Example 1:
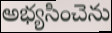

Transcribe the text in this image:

అభ్యసించెను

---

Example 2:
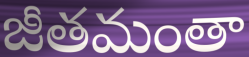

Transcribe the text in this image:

జీతమంతా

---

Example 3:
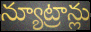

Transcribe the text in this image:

న్యూట్రాన్లు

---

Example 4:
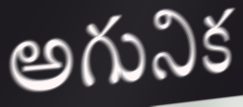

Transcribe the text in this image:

అగునిక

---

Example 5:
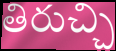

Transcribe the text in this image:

తిరుచ్చి